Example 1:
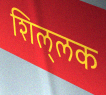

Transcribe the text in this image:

शिल्लक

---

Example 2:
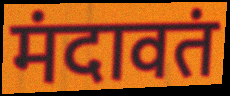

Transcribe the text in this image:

मंदावतं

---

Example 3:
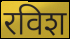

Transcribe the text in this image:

रविश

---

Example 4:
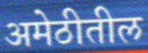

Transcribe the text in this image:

अमेठीतील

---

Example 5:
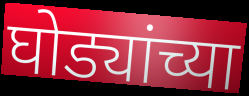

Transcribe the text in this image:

घोड्यांच्या